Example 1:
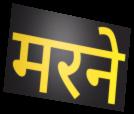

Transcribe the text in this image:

मरने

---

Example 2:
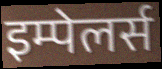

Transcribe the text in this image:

इम्पेलर्स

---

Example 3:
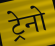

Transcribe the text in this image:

ट्रेनो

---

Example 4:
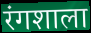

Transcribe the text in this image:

रंगशाला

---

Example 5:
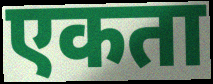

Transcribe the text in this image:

एकता